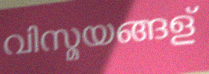
വിസ്മയങ്ങള്